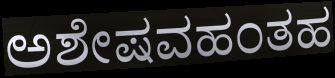
ಅಶೇಷವಹಂತಹ